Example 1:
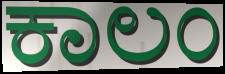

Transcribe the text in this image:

ಕಾಲಂ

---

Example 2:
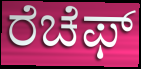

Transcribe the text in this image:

ರೆಚೆಫ್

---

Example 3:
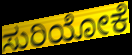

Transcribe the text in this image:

ಸುರಿಯೋಕೆ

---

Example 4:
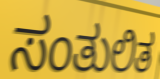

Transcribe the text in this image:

ಸಂತುಲಿತ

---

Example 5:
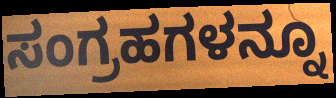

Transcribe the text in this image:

ಸಂಗ್ರಹಗಳನ್ನೂ